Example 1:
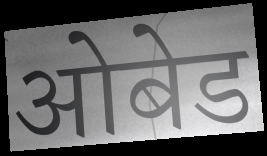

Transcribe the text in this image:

ओबेड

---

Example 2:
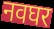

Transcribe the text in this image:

नवघर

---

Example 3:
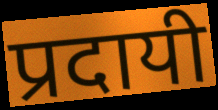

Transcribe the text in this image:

प्रदायी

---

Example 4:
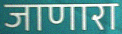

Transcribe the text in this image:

जाणारा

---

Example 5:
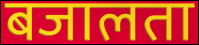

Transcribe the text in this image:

बजालता